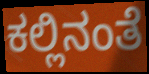
ಕಲ್ಲಿನಂತೆ